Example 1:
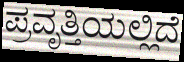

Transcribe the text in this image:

ಪ್ರವೃತ್ತಿಯಲ್ಲಿದೆ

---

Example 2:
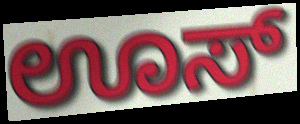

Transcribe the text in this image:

ಊಸ್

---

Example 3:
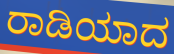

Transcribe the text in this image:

ರಾಡಿಯಾದ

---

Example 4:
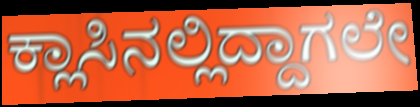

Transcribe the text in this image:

ಕ್ಲಾಸಿನಲ್ಲಿದ್ದಾಗಲೇ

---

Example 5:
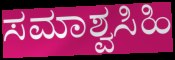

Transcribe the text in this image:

ಸಮಾಶ್ವಸಿಹಿ